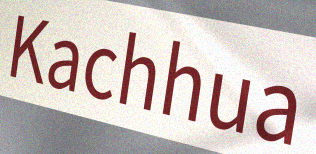
Kachhua